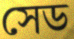
সেড